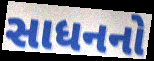
સાધનનો